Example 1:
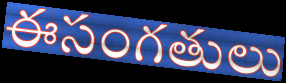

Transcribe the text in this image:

ఈసంగతులు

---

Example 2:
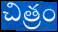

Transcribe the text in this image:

చిత్రం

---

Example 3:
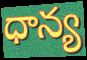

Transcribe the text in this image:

ధాన్య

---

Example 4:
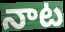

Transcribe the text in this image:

నాట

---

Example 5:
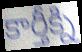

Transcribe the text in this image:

కార్తీక్ని